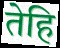
तेहि